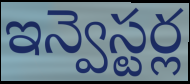
ఇన్వెస్టర్ల